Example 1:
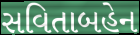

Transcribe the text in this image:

સવિતાબહેન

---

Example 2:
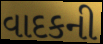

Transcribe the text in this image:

વાદકની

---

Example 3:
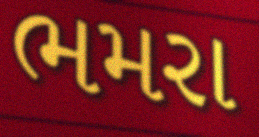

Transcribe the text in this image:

ભમરા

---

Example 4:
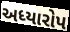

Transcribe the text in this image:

અધ્યારોપ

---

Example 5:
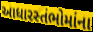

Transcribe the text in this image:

આધારસ્તંભોમાંના